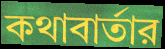
কথাবার্তার